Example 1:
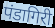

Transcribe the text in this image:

पंडागिरी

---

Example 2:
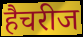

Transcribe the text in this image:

हैचरीज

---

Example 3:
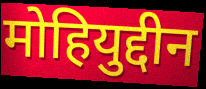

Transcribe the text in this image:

मोहियुद्दीन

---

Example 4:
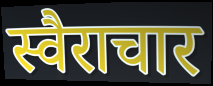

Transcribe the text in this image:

स्वैराचार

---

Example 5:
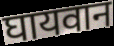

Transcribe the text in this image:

घायवान